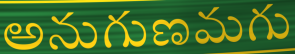
అనుగుణమగు